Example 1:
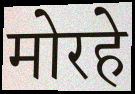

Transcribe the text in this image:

मोरहे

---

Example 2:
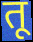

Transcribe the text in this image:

तू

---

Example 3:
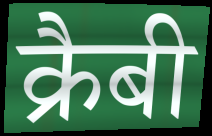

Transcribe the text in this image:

क्रैबी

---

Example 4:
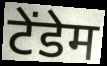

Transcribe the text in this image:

टेंडेम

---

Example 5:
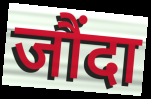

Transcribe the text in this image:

जौंदा